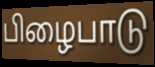
பிழைபாடு